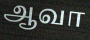
ஆவா